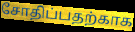
சோதிப்பதற்காக